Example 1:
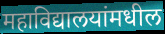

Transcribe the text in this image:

महाविद्यालयांमधील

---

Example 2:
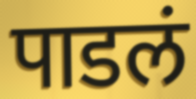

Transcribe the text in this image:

पाडलं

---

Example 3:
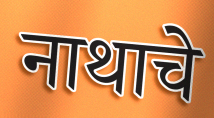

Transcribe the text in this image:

नाथाचे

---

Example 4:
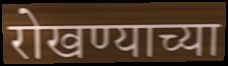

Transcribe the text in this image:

रोखण्याच्या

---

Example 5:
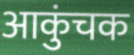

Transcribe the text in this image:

आकुंचक